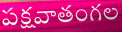
పక్షవాతంగల